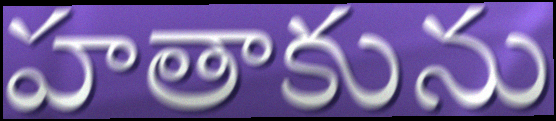
హతాకును